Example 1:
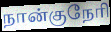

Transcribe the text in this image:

நான்குநேரி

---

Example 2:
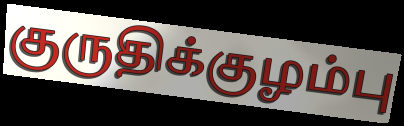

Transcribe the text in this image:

குருதிக்குழம்பு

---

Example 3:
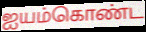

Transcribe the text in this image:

ஐயம்கொண்ட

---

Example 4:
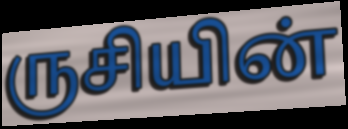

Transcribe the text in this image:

ருசியின்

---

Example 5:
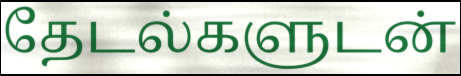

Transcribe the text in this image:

தேடல்களுடன்